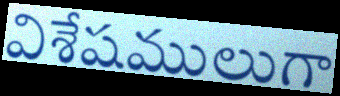
విశేషములుగా